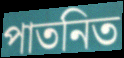
পাতনিত